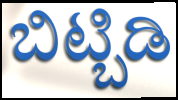
ಬಿಟ್ಬಿಡಿ